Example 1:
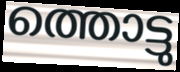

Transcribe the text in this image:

ത്തൊട്ടു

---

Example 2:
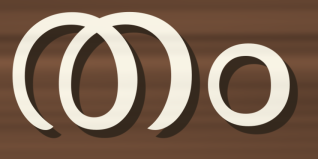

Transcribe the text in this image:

തം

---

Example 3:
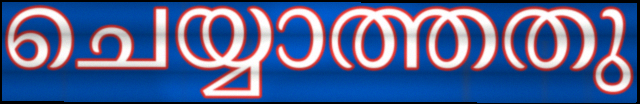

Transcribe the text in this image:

ചെയ്യാത്തതു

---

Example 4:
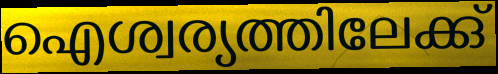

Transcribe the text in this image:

ഐശ്വര്യത്തിലേക്കു്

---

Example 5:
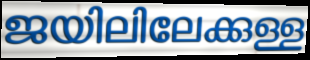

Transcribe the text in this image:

ജയിലിലേക്കുള്ള